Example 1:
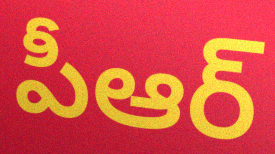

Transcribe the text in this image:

పీఆర్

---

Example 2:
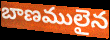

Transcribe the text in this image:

బాణములైన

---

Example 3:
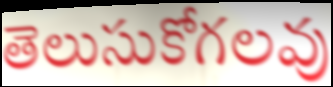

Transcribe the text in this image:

తెలుసుకోగలవు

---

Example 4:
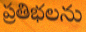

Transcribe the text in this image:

ప్రతిభలను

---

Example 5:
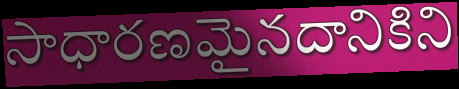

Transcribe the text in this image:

సాధారణమైనదానికిని